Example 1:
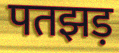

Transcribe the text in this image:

पतझड़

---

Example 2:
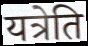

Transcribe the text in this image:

यत्रेति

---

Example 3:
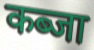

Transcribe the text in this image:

कब्जा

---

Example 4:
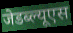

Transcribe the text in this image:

जेडब्ल्यूएस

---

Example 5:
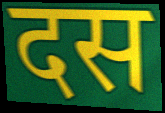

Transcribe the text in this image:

दस